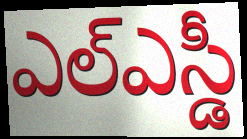
ఎల్ఎస్డీ